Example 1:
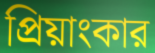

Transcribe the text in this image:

প্রিয়াংকার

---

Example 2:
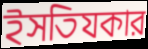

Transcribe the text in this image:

ইসতিযকার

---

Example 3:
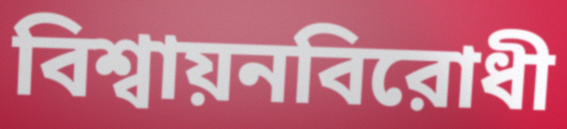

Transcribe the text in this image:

বিশ্বায়নবিরোধী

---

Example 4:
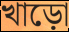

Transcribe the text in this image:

খাড়ো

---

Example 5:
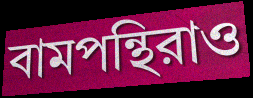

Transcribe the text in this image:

বামপন্থিরাও